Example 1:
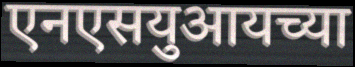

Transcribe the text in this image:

एनएसयुआयच्या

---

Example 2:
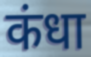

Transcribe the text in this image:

कंधा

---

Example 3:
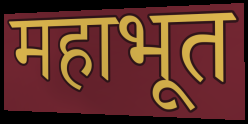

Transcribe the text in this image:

महाभूत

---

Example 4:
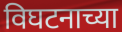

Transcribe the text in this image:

विघटनाच्या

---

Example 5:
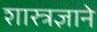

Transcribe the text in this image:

शास्त्रज्ञाने